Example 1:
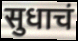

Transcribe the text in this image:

सुधाचं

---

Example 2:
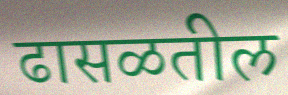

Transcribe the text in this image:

ढासळतील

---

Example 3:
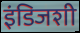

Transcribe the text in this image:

इंडिजशी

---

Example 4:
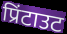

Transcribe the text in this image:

प्रिंटाउट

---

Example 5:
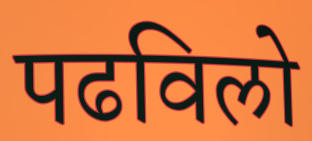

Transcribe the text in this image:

पढविलो